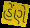
હેંણે